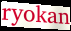
ryokan